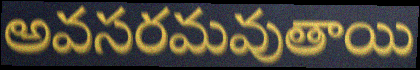
అవసరమవుతాయి